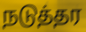
நடுத்தர